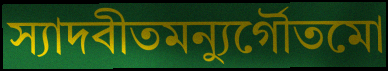
স্যাদবীতমন্যুর্গৌতমো